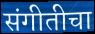
संगीतीचा